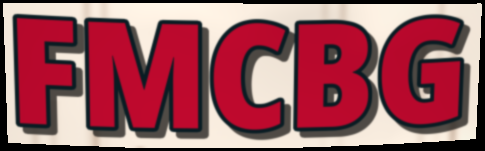
FMCBG